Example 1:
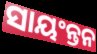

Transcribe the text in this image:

ସାୟଂନ୍ତନ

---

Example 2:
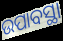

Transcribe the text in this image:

ଉପାବସ୍ଥା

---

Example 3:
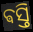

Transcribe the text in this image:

ଵସ୍ତି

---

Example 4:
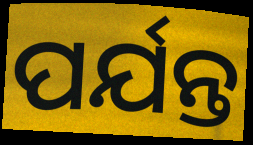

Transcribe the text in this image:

ପର୍ଯନ୍ତ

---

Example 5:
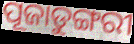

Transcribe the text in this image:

ପୂଜାଡୁଙ୍ଗରୀ